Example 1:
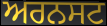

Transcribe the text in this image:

ਅਰਨਸਟ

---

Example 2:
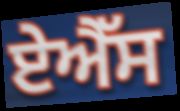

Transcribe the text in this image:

ਏਐੱਸ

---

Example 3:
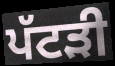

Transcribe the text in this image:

ਪੱਟੜੀ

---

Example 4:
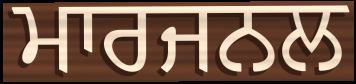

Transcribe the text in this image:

ਮਾਰਜਨਲ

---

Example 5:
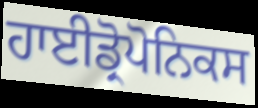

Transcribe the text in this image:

ਹਾਈਡ੍ਰੋਪੋਨਿਕਸ